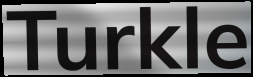
Turkle